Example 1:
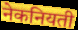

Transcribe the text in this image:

नेकनियती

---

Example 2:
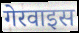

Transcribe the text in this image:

गेरवाइस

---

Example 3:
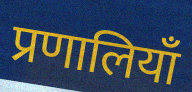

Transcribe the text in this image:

प्रणालियाँ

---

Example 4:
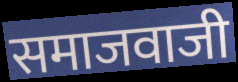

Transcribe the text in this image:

समाजवाजी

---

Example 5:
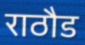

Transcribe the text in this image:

राठौड